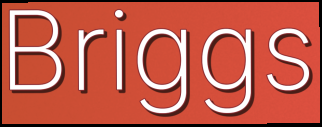
Briggs